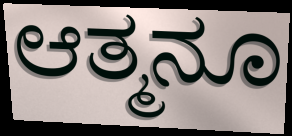
ಆತ್ಮನೂ